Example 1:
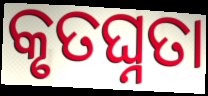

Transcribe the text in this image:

କୃତଘ୍ନତା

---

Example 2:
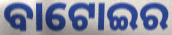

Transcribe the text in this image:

ବାଟୋଇର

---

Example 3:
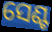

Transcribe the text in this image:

ସେଣ୍ଟ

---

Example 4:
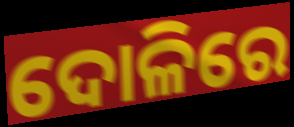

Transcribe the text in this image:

ଦୋଳିରେ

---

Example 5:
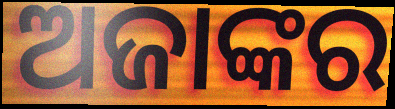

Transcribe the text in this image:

ଅଜାଙ୍କର